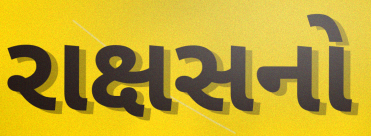
રાક્ષસનો